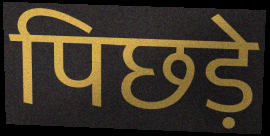
पिछड़े